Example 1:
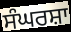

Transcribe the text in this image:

ਸੰਘਰਸ਼ਾ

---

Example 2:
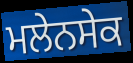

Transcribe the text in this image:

ਮਲੇਨਸੇਕ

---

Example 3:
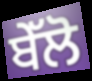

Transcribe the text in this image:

ਬੇੱਲੋ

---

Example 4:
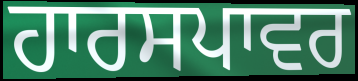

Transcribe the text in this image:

ਹਾਰਸਪਾਵਰ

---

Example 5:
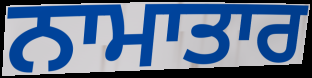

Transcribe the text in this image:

ਨਾਮਾਤਾਰ